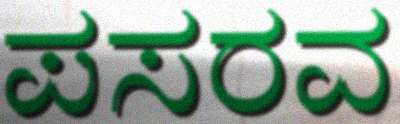
ಪಸರವ